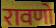
रावणो